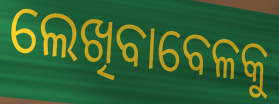
ଲେଖିବାବେଳକୁ